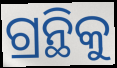
ଗ୍ରନ୍ଥିକୁ